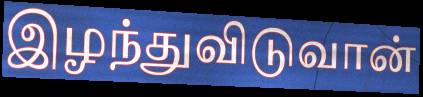
இழந்துவிடுவான்